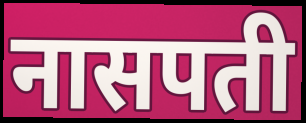
नासपती